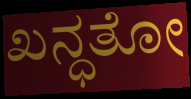
ಖನ್ಧತೋ